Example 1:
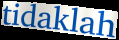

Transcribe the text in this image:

tidaklah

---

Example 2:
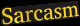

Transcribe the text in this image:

Sarcasm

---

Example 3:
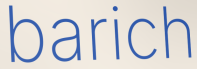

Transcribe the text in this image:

barich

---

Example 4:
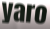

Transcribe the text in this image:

yaro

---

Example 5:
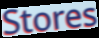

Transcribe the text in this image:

Stores